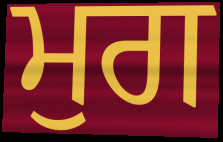
ਮੁਗ